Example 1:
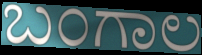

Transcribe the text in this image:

ಬಂಗಾಲ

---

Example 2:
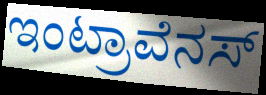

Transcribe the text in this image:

ಇಂಟ್ರಾವೆನಸ್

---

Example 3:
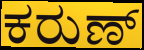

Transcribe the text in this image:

ಕರುಣ್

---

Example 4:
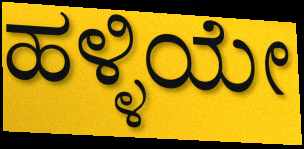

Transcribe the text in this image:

ಹಳ್ಳಿಯೇ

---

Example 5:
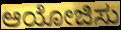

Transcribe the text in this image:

ಆಯೋಜಿಸು